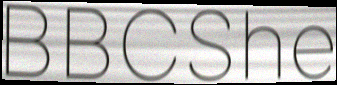
BBCShe